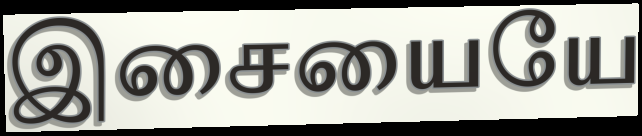
இசையையே